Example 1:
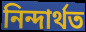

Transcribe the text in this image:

নিন্দাৰ্থত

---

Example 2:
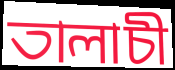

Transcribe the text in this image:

তালাচী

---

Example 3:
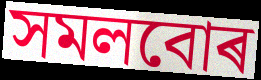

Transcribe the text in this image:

সমলবোৰ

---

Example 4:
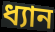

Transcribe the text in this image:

ধ্যান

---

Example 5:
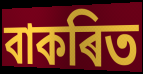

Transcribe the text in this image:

বাকৰিত